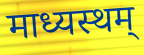
माध्यस्थम्